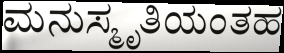
ಮನುಸ್ಮೃತಿಯಂತಹ